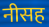
नीसह